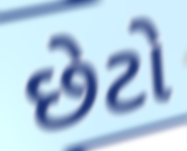
છેટો